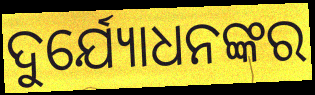
ଦୁର୍ଯ୍ୟୋଧନଙ୍କର